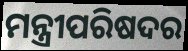
ମନ୍ତ୍ରୀପରିଷଦର